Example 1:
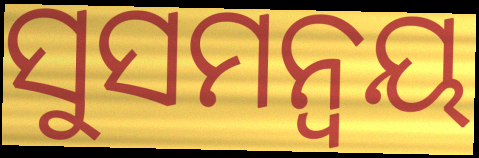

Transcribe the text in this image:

ସୁସମନ୍ୱୟ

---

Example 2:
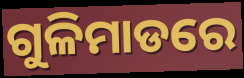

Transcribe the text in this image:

ଗୁଳିମାଡରେ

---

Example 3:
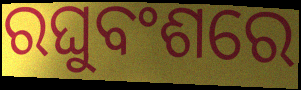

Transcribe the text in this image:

ରଘୁବଂଶରେ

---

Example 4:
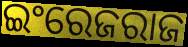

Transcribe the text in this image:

ଇଂରେଜରାଜ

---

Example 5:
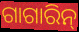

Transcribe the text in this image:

ଗାଗାରିନ୍